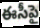
ఈసీపై